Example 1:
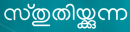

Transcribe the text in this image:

സ്തുതിയ്ക്കുന്ന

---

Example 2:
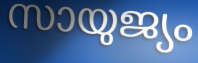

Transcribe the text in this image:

സായുജ്യം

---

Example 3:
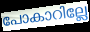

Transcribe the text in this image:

പോകാറില്ലേ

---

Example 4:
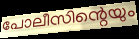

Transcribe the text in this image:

പോലീസിന്റെയും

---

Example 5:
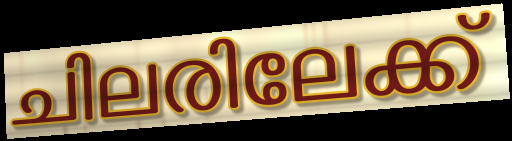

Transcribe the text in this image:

ചിലരിലേക്ക്